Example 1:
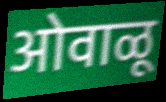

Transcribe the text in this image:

ओवाळू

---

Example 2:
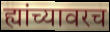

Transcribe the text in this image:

ह्यांच्यावरच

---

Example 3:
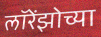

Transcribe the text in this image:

लॉरेंझोच्या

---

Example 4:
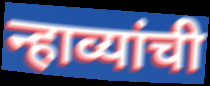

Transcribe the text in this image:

न्हाव्यांची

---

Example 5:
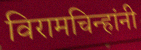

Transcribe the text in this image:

विरामचिन्हांनी